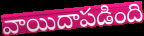
వాయిదాపడింది